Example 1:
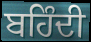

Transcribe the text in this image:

ਬਹਿੰਦੀ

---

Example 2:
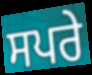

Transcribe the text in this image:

ਸਪਰੇ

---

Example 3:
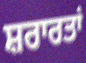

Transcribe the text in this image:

ਸ਼ਰਾਰਤਾਂ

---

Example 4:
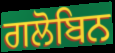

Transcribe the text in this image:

ਗਲੋਬਿਨ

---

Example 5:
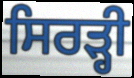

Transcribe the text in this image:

ਸਿਰੜ੍ਹੀ